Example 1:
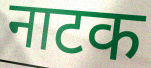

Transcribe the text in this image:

नाटक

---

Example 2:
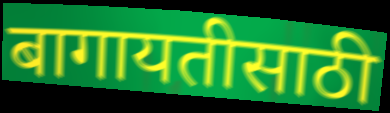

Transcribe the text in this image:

बागायतीसाठी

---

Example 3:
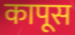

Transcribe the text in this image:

कापूस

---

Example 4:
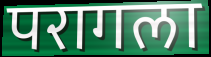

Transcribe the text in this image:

परागला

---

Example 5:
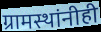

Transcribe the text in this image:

ग्रामस्थांनीही